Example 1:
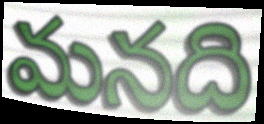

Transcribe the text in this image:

మనది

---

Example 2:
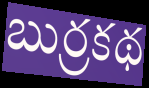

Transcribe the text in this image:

బుర్రకథ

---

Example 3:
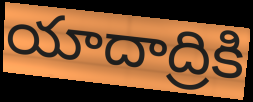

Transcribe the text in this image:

యాదాద్రికి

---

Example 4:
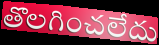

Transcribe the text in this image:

తొలగించలేదు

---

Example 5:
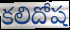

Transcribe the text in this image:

కలిదోష